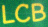
LCB